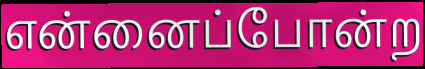
என்னைப்போன்ற